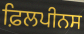
ਫ਼ਿਲਪੀਨਸ